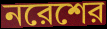
নরেশের